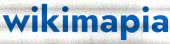
wikimapia